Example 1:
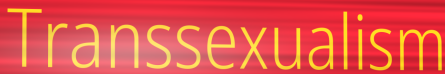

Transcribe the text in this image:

Transsexualism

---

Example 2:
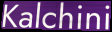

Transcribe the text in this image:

Kalchini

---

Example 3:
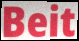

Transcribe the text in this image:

Beit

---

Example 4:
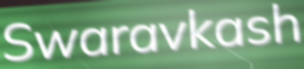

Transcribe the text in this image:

Swaravkash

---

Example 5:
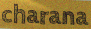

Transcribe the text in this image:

charana